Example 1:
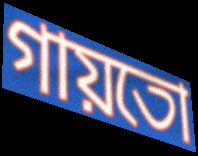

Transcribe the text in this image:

গায়তো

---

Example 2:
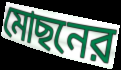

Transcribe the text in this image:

মোছনের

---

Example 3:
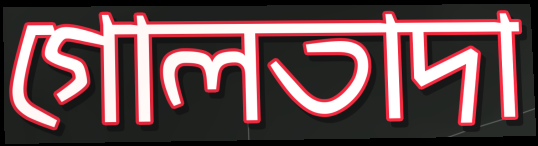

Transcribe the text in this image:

গোলতাদা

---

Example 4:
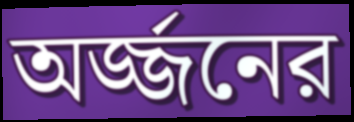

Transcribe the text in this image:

অর্জ্জনের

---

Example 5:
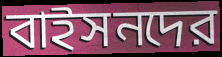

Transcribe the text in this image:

বাইসনদের